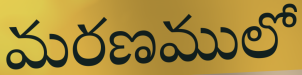
మరణములో